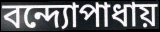
বন্দ্যোপাধায়